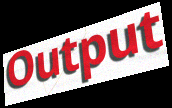
Output